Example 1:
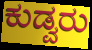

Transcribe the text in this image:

ಕುಡ್ವರು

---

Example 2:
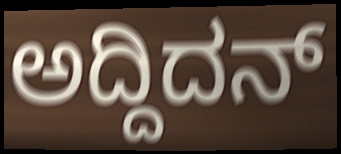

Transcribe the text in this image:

ಅದ್ದಿದನ್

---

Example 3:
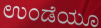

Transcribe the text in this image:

ಉಂಡೆಯೂ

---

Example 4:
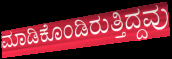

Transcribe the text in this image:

ಮಾಡಿಕೊಂಡಿರುತ್ತಿದ್ದವು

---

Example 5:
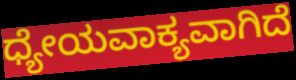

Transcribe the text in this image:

ಧ್ಯೇಯವಾಕ್ಯವಾಗಿದೆ